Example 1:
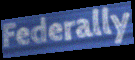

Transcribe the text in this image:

Federally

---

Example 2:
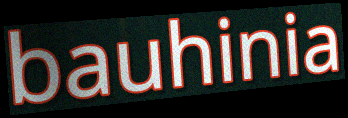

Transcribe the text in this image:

bauhinia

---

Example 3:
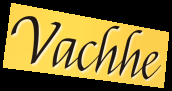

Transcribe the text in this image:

Vachhe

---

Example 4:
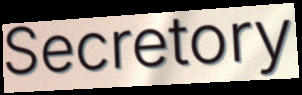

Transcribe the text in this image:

Secretory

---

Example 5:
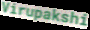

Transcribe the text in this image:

Virupakshi